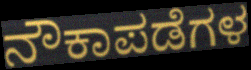
ನೌಕಾಪಡೆಗಳ